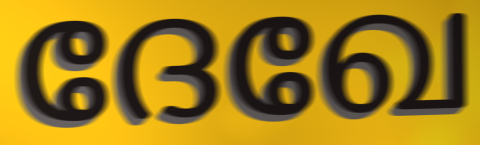
ദേഖേ